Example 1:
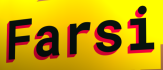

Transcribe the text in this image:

Farsi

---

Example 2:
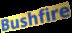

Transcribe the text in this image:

Bushfire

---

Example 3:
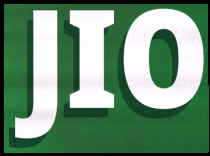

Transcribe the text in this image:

JIO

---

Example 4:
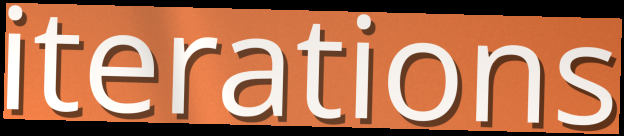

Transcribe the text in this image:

iterations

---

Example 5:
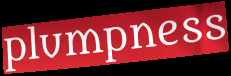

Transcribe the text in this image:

plumpness